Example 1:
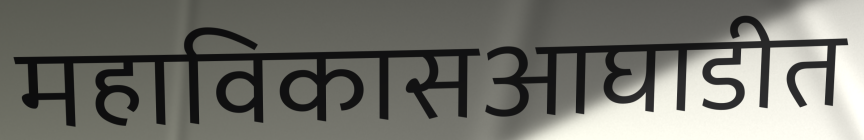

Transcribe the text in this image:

महाविकासआघाडीत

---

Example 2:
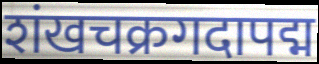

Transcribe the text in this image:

शंखचक्रगदापद्म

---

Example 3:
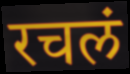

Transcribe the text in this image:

रचलं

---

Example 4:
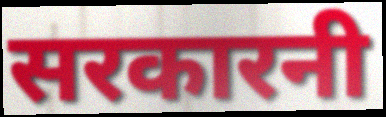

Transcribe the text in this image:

सरकारनी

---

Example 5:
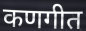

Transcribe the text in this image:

कणगीत